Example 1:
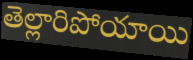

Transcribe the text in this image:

తెల్లారిపోయాయి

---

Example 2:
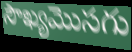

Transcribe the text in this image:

సౌఖ్యమొసగు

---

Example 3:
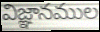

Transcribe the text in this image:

విజ్ఞానముల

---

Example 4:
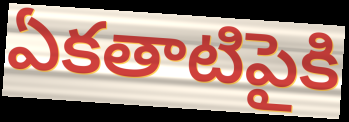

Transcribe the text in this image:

ఏకతాటిపైకి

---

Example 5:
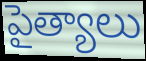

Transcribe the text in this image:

పైత్యాలు